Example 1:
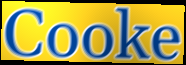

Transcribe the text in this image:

Cooke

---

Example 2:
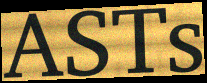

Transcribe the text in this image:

ASTs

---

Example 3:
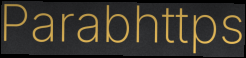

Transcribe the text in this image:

Parabhttps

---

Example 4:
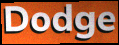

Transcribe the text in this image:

Dodge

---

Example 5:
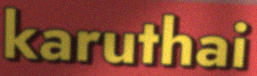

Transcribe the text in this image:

karuthai